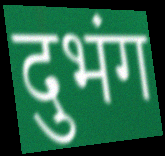
दुभंग